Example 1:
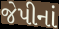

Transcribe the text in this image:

જેપીનાં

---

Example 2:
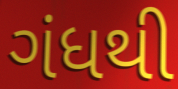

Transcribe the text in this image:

ગંધથી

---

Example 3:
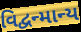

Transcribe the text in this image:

વિદ્વન્માન્ય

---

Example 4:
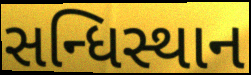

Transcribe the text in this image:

સન્ધિસ્થાન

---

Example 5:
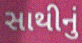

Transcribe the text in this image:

સાથીનું